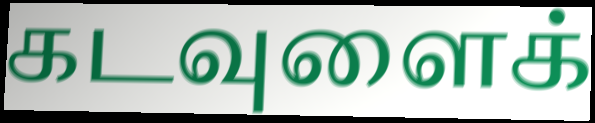
கடவுளைக்